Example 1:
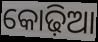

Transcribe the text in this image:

କୋଢ଼ିଆ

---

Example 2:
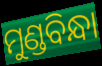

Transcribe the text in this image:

ମୁଣ୍ଡବିନ୍ଧା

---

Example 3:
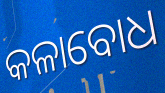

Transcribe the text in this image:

କଳାବୋଧ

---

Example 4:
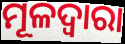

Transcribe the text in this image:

ମୂଳଦ୍ଵାରା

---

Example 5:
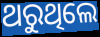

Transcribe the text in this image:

ଥରୁଥିଲେ